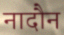
नादौन